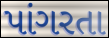
પાંગરતા